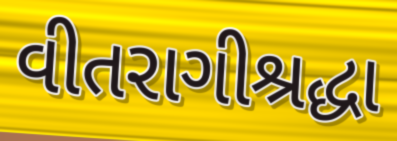
વીતરાગીશ્રદ્ધા